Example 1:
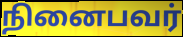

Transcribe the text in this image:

நினைபவர்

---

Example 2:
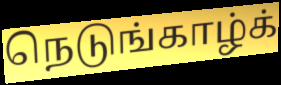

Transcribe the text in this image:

நெடுங்காழ்க்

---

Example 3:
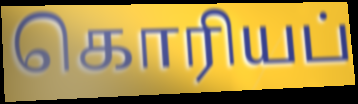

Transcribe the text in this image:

கொரியப்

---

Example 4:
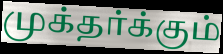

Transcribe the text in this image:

முக்தர்க்கும்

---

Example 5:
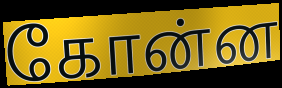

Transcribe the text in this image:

கோன்ன